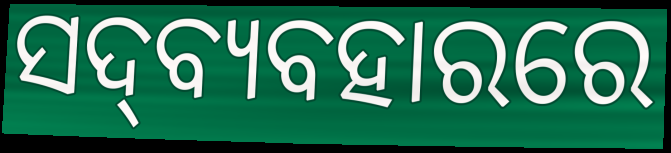
ସଦ୍‍ବ୍ୟବହାରରେ